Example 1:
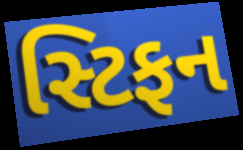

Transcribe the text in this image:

સ્ટિફન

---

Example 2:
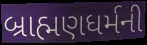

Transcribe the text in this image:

બ્રાહ્મણધર્મની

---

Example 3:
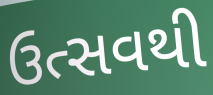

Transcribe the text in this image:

ઉત્સવથી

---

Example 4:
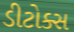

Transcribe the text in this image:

ડીટોક્સ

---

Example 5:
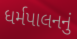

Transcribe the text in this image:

ધર્મપાલનનું